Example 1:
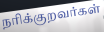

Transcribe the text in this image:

நரிக்குறவர்கள்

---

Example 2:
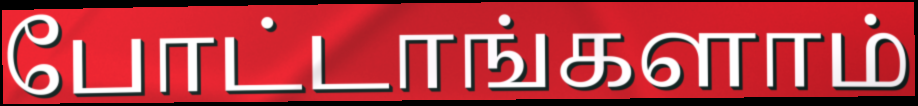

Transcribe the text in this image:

போட்டாங்களாம்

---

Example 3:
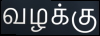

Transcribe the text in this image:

வழக்கு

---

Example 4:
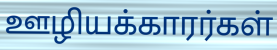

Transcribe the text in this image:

ஊழியக்காரர்கள்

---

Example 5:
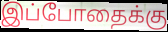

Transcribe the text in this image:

இப்போதைக்கு